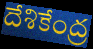
దేశికేంద్ర